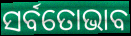
ସର୍ବତୋଭାବ